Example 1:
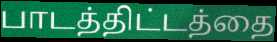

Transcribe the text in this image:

பாடத்திட்டத்தை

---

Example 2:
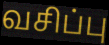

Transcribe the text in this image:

வசிப்பு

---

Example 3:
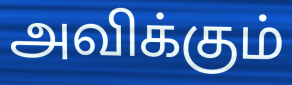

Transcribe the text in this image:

அவிக்கும்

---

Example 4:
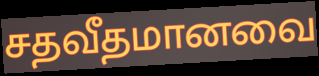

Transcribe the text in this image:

சதவீதமானவை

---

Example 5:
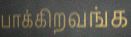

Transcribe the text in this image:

பாக்கிறவங்க